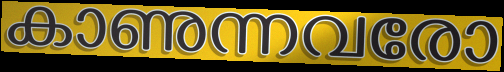
കാണുന്നവരോ